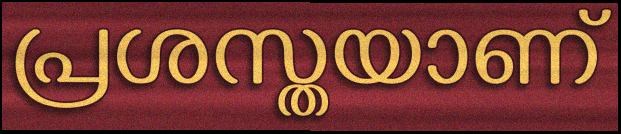
പ്രശസ്തയാണ്